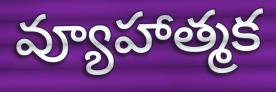
వ్యూహాత్మక